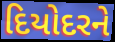
દિયોદરને